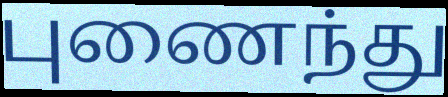
புணைந்து